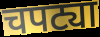
चपट्या